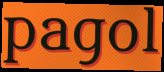
pagol